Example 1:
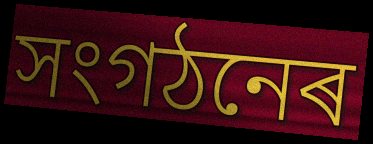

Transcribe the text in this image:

সংগঠনেৰ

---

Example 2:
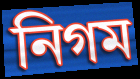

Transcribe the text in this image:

নিগম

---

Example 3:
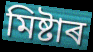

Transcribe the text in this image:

মিষ্টাৰ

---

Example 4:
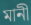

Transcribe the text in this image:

মানী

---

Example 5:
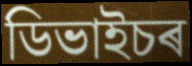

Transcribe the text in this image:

ডিভাইচৰ